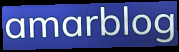
amarblog